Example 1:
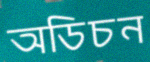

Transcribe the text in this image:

অডিচন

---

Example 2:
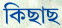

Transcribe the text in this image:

কিছাছ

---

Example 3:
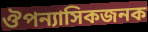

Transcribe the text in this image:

ঔপন্যাসিকজনক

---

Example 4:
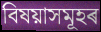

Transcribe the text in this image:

বিষয়াসমূহৰ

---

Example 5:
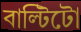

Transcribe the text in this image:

বাল্টিটো